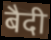
बैदी